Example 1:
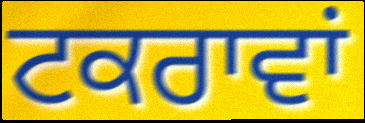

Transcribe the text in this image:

ਟਕਰਾਵਾਂ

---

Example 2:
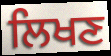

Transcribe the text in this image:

ਲਿਖਣ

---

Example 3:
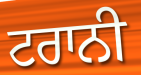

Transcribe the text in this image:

ਟਰਾਨੀ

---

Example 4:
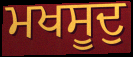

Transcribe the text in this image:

ਮਖਸੂਦੁ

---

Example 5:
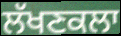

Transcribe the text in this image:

ਲੱਖਣਕਲਾ